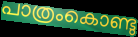
പാത്രംകൊണ്ടു